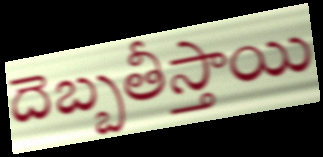
దెబ్బతీస్తాయి